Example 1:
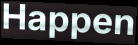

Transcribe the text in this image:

Happen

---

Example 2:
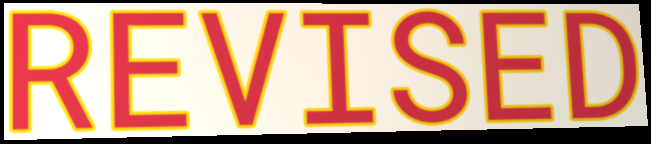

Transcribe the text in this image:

REVISED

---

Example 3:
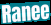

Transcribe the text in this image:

Ranee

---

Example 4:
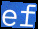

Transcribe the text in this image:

ef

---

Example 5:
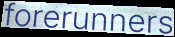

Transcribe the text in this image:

forerunners